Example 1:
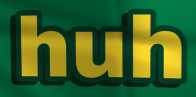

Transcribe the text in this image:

huh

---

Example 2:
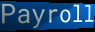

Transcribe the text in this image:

Payroll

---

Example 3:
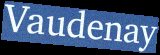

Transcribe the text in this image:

Vaudenay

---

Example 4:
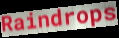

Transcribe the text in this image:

Raindrops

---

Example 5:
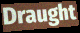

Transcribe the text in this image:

Draught